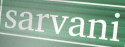
sarvani